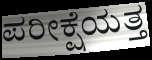
ಪರೀಕ್ಷೆಯತ್ತ